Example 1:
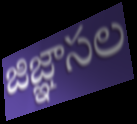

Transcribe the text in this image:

జిజ్ఞాసల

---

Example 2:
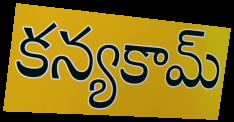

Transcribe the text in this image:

కన్యకామ్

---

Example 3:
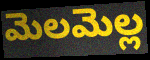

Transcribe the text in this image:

మెలమెల్ల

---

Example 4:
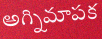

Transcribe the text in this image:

అగ్నిమాపక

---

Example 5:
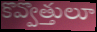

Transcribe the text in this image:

కొవ్వొత్తులూ